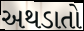
અથડાતો